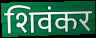
शिवंकर